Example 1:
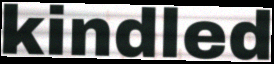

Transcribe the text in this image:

kindled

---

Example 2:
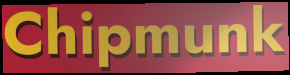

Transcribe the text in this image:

Chipmunk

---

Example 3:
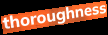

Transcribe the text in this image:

thoroughness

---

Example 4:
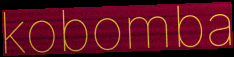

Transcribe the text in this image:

kobomba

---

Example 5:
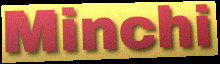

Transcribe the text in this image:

Minchi